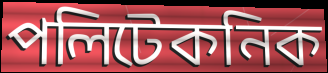
পলিটেকনিক